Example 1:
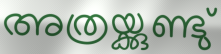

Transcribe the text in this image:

അത്രയ്ക്കുണ്ടു്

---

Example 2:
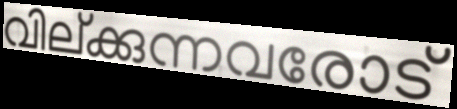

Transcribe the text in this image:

വില്ക്കുന്നവരോട്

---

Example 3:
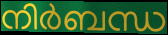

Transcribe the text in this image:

നിർബന്ധ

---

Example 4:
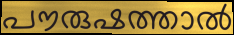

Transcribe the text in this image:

പൗരുഷത്താൽ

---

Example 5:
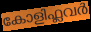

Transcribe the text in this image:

കോളിഫ്ലവർ